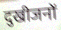
दुखीजनों